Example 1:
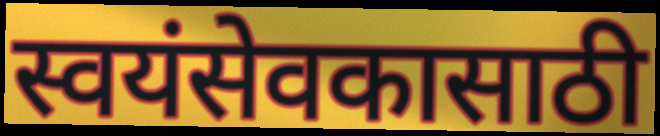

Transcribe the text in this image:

स्वयंसेवकासाठी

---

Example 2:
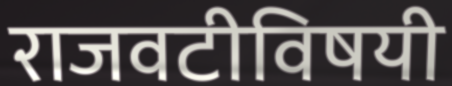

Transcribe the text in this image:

राजवटीविषयी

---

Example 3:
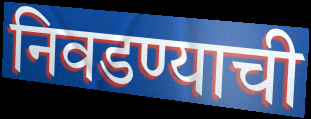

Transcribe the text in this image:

निवडण्याची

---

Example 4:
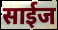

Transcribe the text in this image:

साईज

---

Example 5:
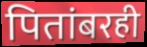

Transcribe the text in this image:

पितांबरही